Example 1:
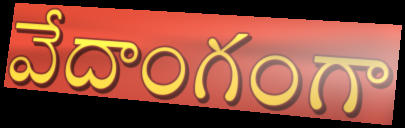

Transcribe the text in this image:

వేదాంగంగా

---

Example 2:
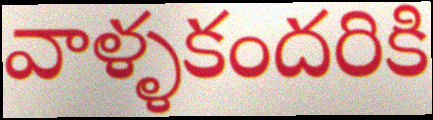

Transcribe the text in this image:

వాళ్ళకందరికి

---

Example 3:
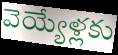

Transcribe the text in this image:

వెయ్యేళ్లకు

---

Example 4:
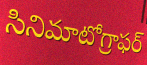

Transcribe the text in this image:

సినిమాటోగ్రాఫర్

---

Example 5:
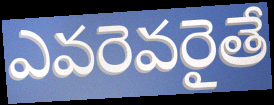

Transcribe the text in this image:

ఎవరెవరైతే